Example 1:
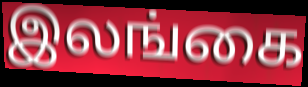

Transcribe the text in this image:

இலங்கை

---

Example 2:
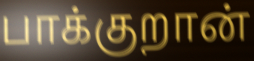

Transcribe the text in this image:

பாக்குறான்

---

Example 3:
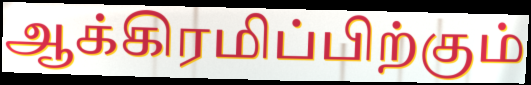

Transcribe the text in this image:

ஆக்கிரமிப்பிற்கும்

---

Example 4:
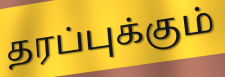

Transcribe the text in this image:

தரப்புக்கும்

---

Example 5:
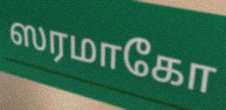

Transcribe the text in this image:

ஸரமாகோ